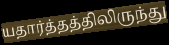
யதார்த்தத்திலிருந்து